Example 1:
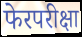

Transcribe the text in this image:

फेरपरीक्षा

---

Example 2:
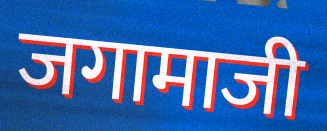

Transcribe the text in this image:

जगामाजी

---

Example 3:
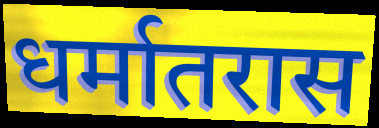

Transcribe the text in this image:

धर्मातरास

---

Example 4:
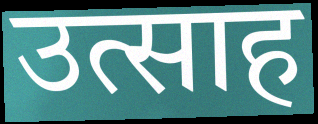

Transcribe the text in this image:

उत्साह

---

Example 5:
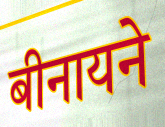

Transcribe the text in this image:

बीनायने